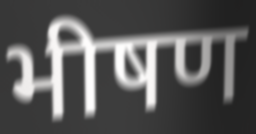
भीषण